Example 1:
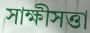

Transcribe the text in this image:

সাক্ষীসত্তা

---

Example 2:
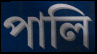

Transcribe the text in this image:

পালি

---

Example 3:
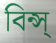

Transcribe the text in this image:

বিন্স্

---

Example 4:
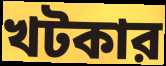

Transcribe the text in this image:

খটকার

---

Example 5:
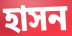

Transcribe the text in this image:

হাসন